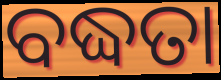
ବଦ୍ଧତା